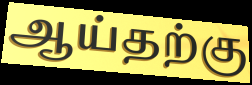
ஆய்தற்கு